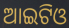
ଆଇଟିଓ